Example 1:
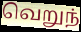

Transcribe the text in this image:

வெறுந்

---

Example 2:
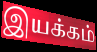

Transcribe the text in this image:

இயக்கம்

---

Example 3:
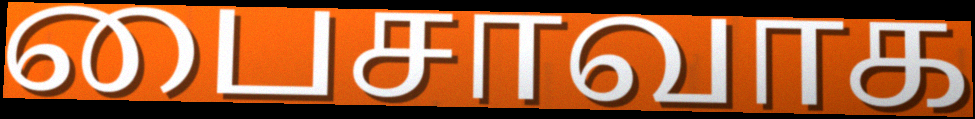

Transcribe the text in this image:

பைசாவாக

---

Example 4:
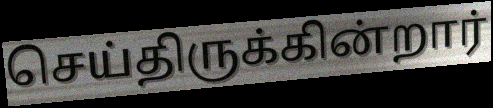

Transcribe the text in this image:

செய்திருக்கின்றார்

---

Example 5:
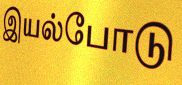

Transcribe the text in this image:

இயல்போடு